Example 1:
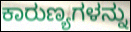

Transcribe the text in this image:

ಕಾರುಣ್ಯಗಳನ್ನು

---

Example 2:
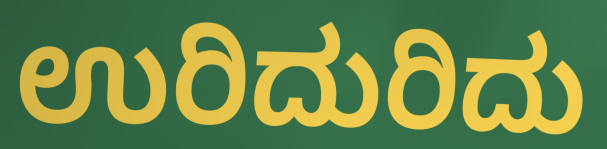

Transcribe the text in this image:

ಉರಿದುರಿದು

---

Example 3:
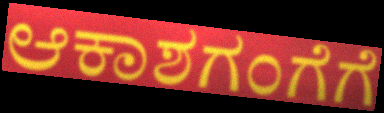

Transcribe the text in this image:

ಆಕಾಶಗಂಗೆಗೆ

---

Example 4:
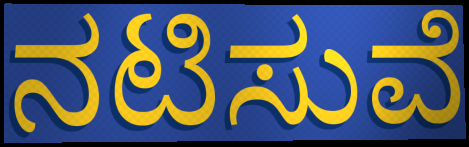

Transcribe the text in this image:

ನಟಿಸುವೆ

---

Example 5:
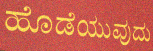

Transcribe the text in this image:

ಹೊಡೆಯುವುದು